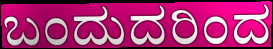
ಬಂದುದರಿಂದ